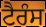
ਟੈਰੰਸ